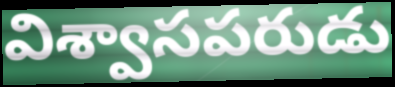
విశ్వాసపరుడు